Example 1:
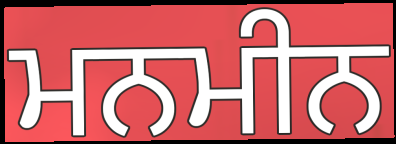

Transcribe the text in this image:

ਮਨਮੀਨ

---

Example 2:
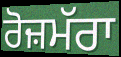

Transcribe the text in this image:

ਰੋਜ਼ਮੱਰਾ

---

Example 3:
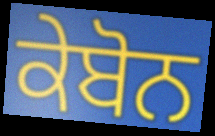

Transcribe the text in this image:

ਕੇਬੋਨ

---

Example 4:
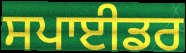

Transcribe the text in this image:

ਸਪਾਈਡਰ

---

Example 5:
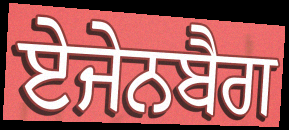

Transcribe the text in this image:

ਏਜੇਨਬੈਗ